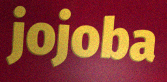
jojoba